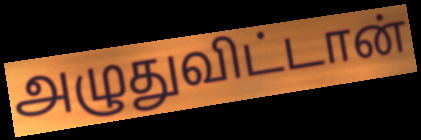
அழுதுவிட்டான்